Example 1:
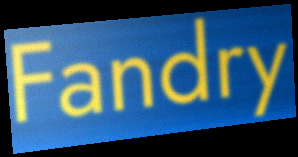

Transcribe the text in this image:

Fandry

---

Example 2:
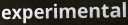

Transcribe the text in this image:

experimental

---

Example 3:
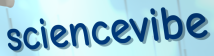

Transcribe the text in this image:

sciencevibe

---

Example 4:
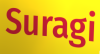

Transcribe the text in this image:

Suragi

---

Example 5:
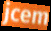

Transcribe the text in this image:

jcem